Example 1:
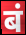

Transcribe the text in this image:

बं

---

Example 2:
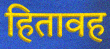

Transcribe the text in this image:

हितावह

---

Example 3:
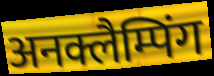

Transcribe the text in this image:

अनक्लैम्पिंग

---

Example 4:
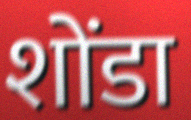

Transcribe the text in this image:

शोंडा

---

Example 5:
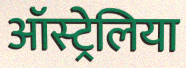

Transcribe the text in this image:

ऑस्‍ट्रेलिया